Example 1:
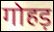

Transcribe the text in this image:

गोहड़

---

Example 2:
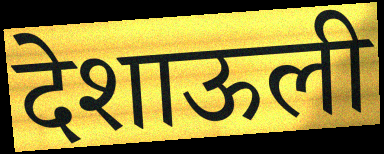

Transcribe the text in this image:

देशाऊली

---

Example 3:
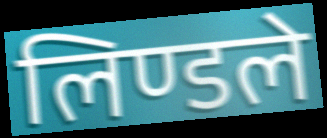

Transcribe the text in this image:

लिण्डले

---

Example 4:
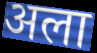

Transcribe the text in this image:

अला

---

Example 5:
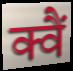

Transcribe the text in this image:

क्वैं